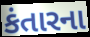
કંતારના